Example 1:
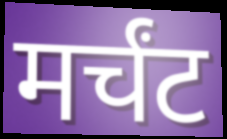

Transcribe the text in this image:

मर्चंट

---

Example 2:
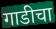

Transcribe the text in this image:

गाडीचा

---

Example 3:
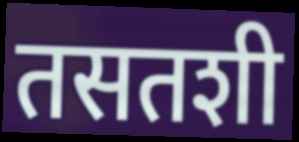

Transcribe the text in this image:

तसतशी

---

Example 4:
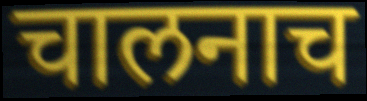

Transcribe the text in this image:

चालनाच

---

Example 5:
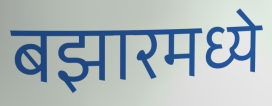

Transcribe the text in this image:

बझारमध्ये